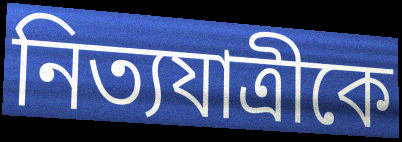
নিত্যযাত্রীকে